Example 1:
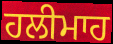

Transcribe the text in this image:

ਹਲੀਮਾਹ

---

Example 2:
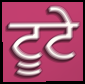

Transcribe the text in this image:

ਟੂਟੇ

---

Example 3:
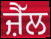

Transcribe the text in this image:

ਜ਼ੈੱਲ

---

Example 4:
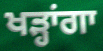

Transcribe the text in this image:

ਖੜ੍ਹਾਂਗਾ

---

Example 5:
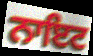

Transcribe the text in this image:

ਨਾਇਟ